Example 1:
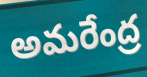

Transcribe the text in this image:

అమరేంద్ర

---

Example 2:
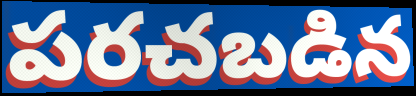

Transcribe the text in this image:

పరచబడిన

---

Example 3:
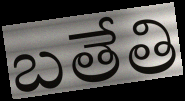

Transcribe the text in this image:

బతేతి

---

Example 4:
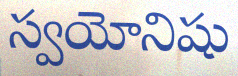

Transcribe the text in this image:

స్వయోనిషు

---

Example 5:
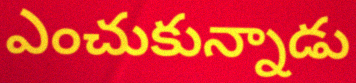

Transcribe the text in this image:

ఎంచుకున్నాడు